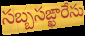
సబ్బసఙ్ఖారేసు